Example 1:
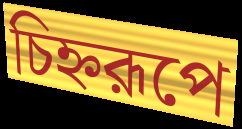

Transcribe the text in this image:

চিহ্নরূপে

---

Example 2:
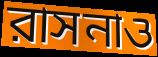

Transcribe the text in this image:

রাসনাও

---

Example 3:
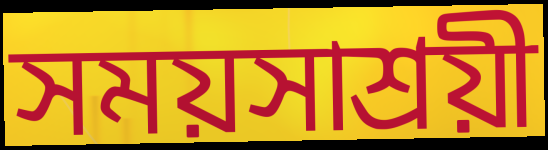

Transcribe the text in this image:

সময়সাশ্রয়ী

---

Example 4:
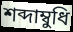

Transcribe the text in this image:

শব্দাম্বুধি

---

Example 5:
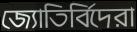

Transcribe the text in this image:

জ্যোতির্বিদেরা